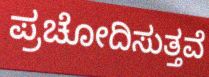
ಪ್ರಚೋದಿಸುತ್ತವೆ